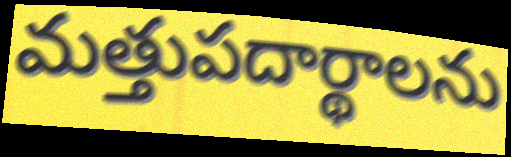
మత్తుపదార్థాలను